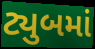
ટ્યુબમાં